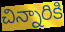
చిన్నారికి